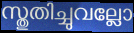
സ്തുതിച്ചുവല്ലോ